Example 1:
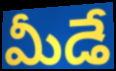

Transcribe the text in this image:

మీడే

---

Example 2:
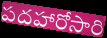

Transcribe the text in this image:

పదహారోసారి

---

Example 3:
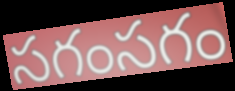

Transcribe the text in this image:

సగంసగం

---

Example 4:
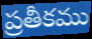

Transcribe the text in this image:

ప్రతీకము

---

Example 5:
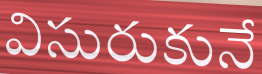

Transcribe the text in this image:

విసురుకునే